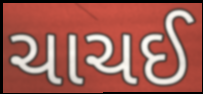
ચાચઈ